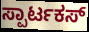
ಸ್ಪಾರ್ಟಕಸ್